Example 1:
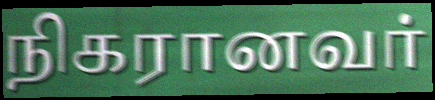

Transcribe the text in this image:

நிகரானவர்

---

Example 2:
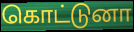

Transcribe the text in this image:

கொட்டுனா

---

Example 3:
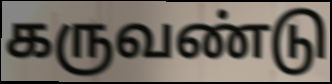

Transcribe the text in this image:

கருவண்டு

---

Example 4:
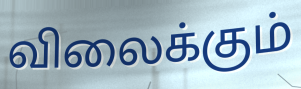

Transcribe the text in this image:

விலைக்கும்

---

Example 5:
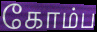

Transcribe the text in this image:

கோம்ப